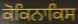
ਕੋਕਿਨਾਕਿਸ